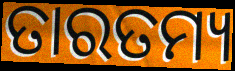
ତାରତମ୍ୟ